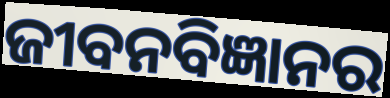
ଜୀବନବିଜ୍ଞାନର